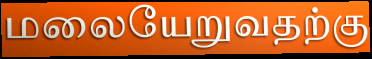
மலையேறுவதற்கு